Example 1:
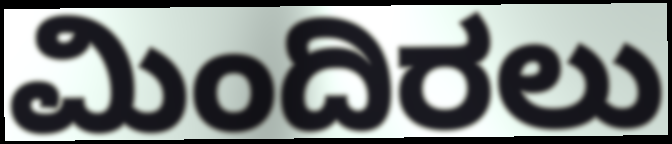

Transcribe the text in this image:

ಮಿಂದಿರಲು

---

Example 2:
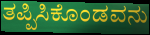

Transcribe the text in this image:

ತಪ್ಪಿಸಿಕೊಂಡವನು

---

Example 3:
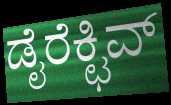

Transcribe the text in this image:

ಡೈರೆಕ್ಟಿವ್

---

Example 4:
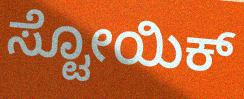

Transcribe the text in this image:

ಸ್ಟೋಯಿಕ್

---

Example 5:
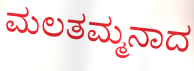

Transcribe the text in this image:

ಮಲತಮ್ಮನಾದ